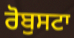
ਰੋਬੁਸਟਾ